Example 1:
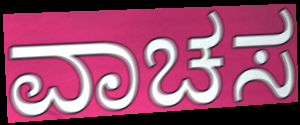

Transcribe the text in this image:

ವಾಚಸ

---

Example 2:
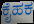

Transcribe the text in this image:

ಕೈಹಕ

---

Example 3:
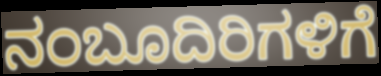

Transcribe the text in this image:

ನಂಬೂದಿರಿಗಳಿಗೆ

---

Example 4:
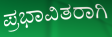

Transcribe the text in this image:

ಪ್ರಭಾವಿತರಾಗಿ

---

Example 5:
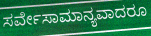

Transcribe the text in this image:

ಸರ್ವೇಸಾಮಾನ್ಯವಾದರೂ